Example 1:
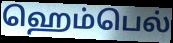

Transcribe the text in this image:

ஹெம்பெல்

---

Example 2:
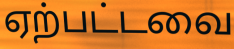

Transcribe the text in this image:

ஏற்பட்டவை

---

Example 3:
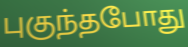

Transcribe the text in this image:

புகுந்தபோது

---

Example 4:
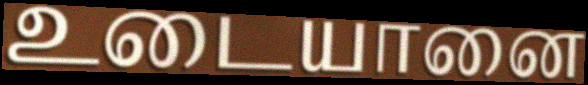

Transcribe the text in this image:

உடையானை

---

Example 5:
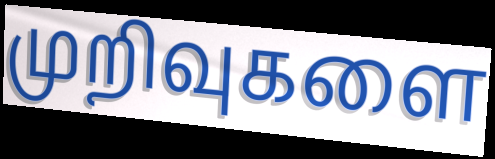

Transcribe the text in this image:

முறிவுகளை